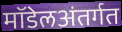
मॉडेलअंतर्गत